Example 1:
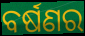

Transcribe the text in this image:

ବର୍ଷଣର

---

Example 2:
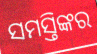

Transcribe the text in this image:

ସମସ୍ତିଙ୍କର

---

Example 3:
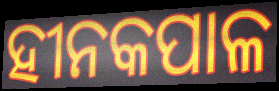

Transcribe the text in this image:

ହୀନକପାଳ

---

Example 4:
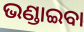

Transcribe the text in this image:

ଭଣ୍ଡାଇବା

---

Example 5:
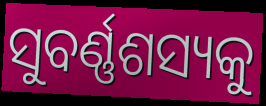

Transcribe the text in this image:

ସୁବର୍ଣ୍ଣଶସ୍ୟକୁ